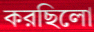
করছিলো